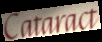
Cataract